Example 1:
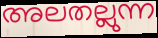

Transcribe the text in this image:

അലതല്ലുന്ന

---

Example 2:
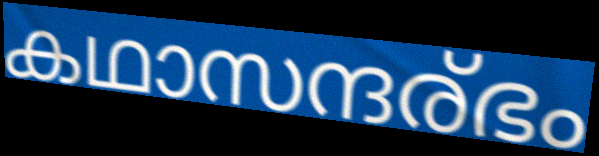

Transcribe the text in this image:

കഥാസന്ദര്ഭം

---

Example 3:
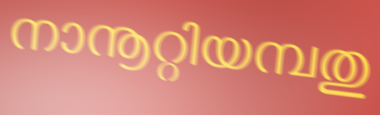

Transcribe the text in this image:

നാനൂറ്റിയമ്പതു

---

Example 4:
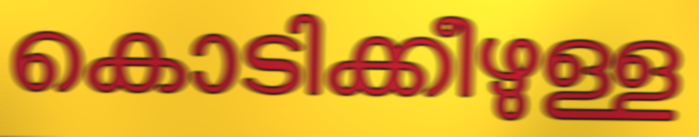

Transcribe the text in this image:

കൊടിക്കീഴുള്ള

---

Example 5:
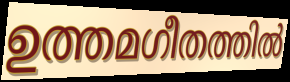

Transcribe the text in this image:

ഉത്തമഗീതത്തിൽ